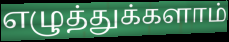
எழுத்துக்களாம்